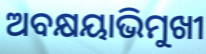
ଅବକ୍ଷୟାଭିମୁଖୀ